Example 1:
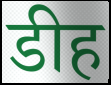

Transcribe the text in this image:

डीह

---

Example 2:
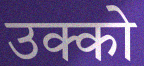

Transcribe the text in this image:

उक्को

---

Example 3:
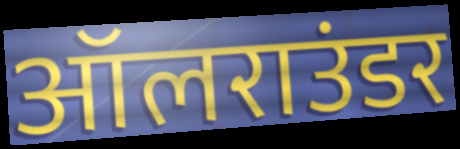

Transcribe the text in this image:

ऑलराउंडर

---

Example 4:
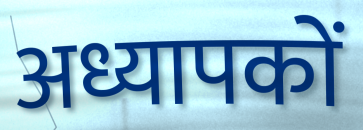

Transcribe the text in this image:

अध्यापकों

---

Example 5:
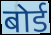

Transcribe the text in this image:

बोर्ड